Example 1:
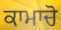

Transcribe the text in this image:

ਕਾਮਾਚੋ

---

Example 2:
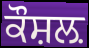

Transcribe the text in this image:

ਕੌਸ਼ਲ਼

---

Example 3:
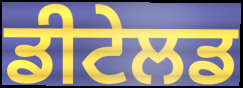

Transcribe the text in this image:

ਡੀਟੇਲਡ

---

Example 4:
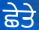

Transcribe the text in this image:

ਛੇਤੇ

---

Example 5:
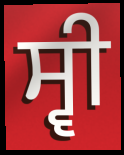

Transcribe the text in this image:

ਸ੍ਵੀ